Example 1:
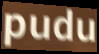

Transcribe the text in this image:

pudu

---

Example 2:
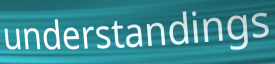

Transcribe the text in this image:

understandings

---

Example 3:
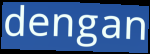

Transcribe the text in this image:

dengan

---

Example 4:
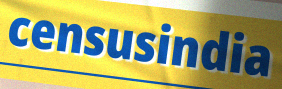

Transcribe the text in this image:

censusindia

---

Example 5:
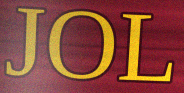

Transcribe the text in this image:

JOL